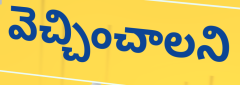
వెచ్చించాలని